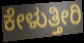
ಕೇಳುತ್ತೀರಿ